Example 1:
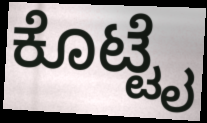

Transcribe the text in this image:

ಕೊಟ್ಟೈ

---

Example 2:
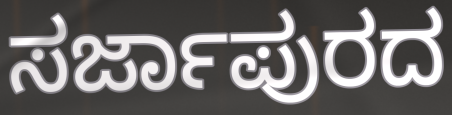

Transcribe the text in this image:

ಸರ್ಜಾಪುರದ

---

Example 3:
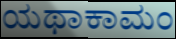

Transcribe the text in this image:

ಯಥಾಕಾಮಂ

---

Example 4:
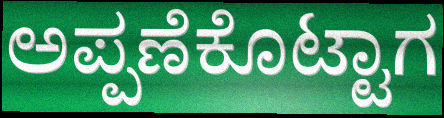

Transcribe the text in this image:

ಅಪ್ಪಣೆಕೊಟ್ಟಾಗ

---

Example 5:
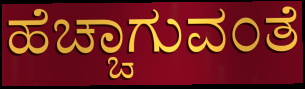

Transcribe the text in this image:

ಹೆಚ್ಚಾಗುವಂತೆ